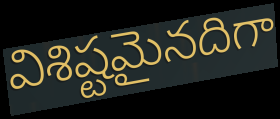
విశిష్టమైనదిగా